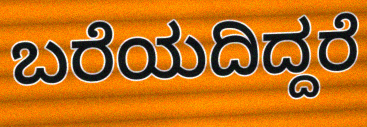
ಬರೆಯದಿದ್ದರೆ